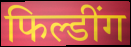
फिल्डींग